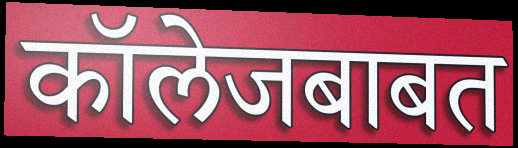
कॉलेजबाबत